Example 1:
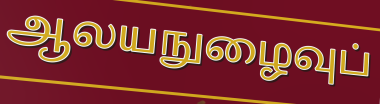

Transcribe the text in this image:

ஆலயநுழைவுப்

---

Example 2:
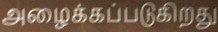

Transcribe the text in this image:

அழைக்கப்படுகிறது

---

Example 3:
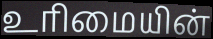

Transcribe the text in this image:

உரிமையின்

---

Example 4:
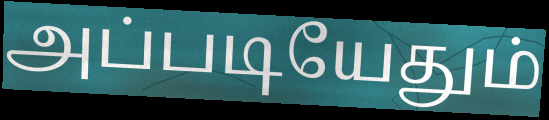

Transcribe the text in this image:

அப்படியேதும்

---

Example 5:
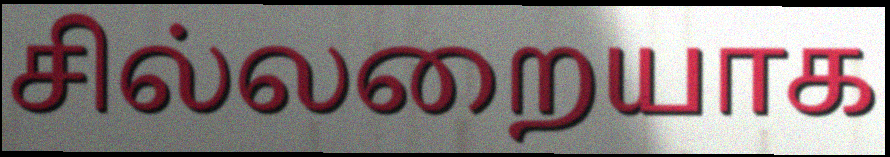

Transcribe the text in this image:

சில்லறையாக